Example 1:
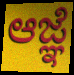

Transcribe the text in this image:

ಆಜ್ಞೆ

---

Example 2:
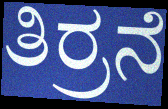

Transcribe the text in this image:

ತಿರ್ರನೆ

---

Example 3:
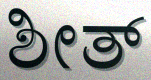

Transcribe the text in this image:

ಶೀತ್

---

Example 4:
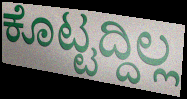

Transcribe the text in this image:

ಕೊಟ್ಟದ್ದಿಲ್ಲ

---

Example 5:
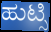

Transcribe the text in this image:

ಹುಟ್ಸಿ